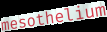
mesothelium